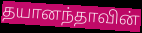
தயானந்தாவின்